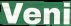
Veni